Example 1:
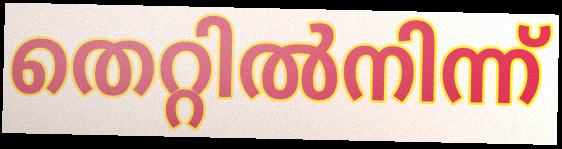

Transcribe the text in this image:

തെറ്റിൽനിന്ന്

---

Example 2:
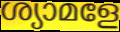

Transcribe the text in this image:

ശ്യാമളേ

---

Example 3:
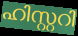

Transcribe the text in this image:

ഹിസ്റ്ററി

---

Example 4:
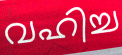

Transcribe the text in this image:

വഹിച്ച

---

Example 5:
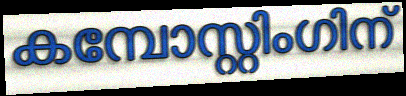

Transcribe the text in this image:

കമ്പോസ്റ്റിംഗിന്